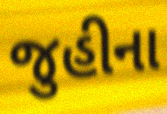
જુહીના